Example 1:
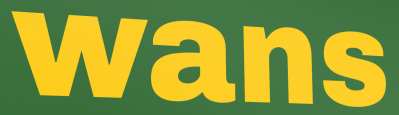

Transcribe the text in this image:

wans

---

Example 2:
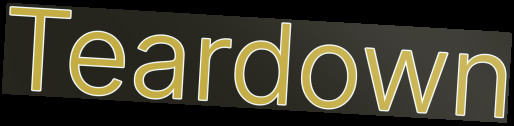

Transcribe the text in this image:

Teardown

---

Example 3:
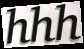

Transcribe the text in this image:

hhh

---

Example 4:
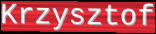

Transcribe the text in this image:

Krzysztof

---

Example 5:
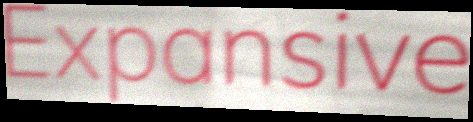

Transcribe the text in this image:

Expansive